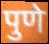
पुणे